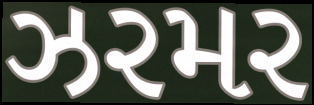
ઝરમર